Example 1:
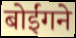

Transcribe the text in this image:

बोईंगने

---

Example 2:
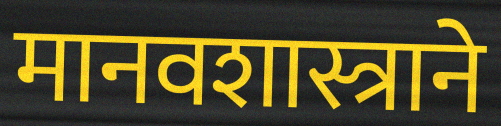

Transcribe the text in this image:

मानवशास्त्राने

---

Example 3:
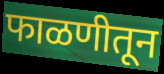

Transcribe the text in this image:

फाळणीतून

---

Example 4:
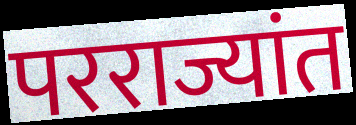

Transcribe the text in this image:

परराज्यांत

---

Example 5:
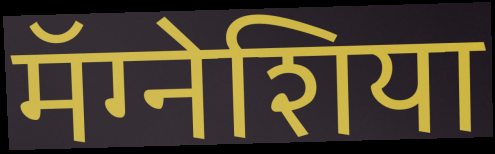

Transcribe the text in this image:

मॅग्‍नेशिया